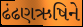
ઢંઢણઋષિને